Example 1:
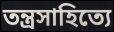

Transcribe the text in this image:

তন্ত্রসাহিত্যে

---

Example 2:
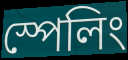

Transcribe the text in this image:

স্পেলিং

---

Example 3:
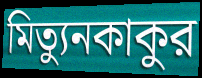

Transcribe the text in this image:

মিত্যুনকাকুর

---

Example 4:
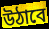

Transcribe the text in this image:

উঠাবে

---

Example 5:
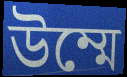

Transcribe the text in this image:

উম্মে